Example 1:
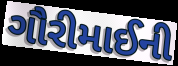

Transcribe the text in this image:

ગૌરીમાઈની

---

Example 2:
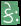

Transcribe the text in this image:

કેઃ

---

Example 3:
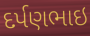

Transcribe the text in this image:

દર્પણભાઇ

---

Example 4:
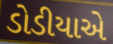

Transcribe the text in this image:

ડોડીયાએ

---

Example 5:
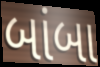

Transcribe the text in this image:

બાંબા